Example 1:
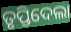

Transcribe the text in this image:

ତୃପ୍ତିଦେଲା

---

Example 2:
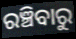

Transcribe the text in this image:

ରଞ୍ଚିବାରୁ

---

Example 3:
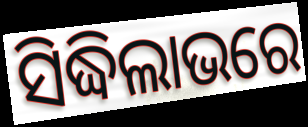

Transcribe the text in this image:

ସିଦ୍ଧିଲାଭରେ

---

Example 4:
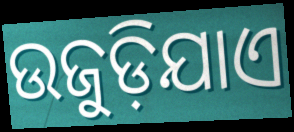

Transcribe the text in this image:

ଉଜୁଡ଼ିଯାଏ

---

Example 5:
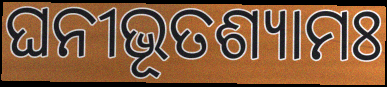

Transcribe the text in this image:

ଘନୀଭୂତଶ୍ୟାମଃ